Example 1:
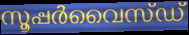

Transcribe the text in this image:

സൂപ്പർവൈസ്ഡ്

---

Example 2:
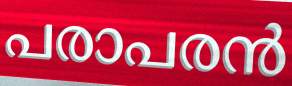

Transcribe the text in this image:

പരാപരൻ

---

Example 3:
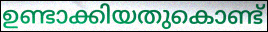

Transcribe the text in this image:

ഉണ്ടാക്കിയതുകൊണ്ട്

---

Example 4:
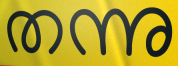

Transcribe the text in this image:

തന്നു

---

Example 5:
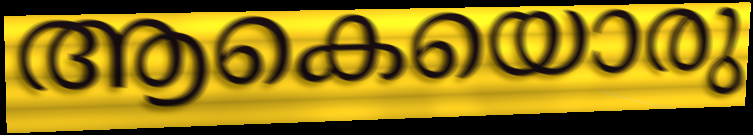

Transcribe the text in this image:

ആകെയൊരു